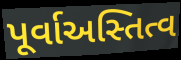
પૂર્વાઅસ્તિત્વ